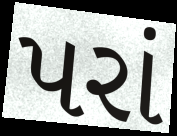
પરાં